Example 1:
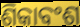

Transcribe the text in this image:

ଶିକାବଂଶ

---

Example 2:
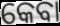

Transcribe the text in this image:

କେବା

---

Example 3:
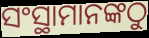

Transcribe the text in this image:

ସଂସ୍ଥାମାନଙ୍କଠୁ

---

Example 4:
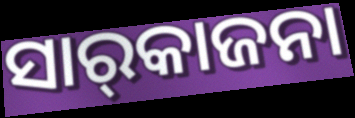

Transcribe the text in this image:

ସାର୍‌କାଜନା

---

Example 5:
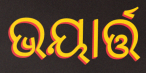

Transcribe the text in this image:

ଭୟାର୍ତ୍ତ